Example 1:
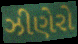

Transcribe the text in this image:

ઝીણેરો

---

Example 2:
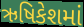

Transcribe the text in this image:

ઋષિકેશમાં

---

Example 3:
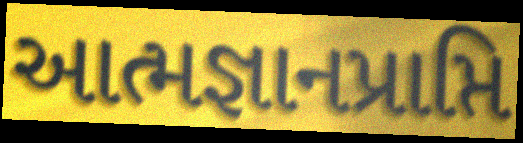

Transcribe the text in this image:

આત્મજ્ઞાનપ્રાપ્તિ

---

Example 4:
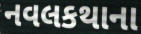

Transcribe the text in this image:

નવલકથાના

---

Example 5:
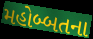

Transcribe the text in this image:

મહોબ્બતના